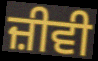
ਜ਼ੀਵੀ